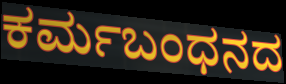
ಕರ್ಮಬಂಧನದ